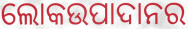
ଲୋକଉପାଦାନର